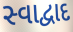
સ્વાદ્વાદ